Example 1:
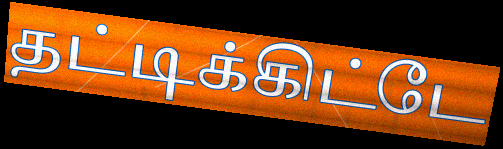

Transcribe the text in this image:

தட்டிக்கிட்டே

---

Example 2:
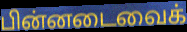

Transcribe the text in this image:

பின்னடைவைக்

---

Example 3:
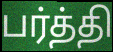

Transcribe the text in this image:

பர்த்தி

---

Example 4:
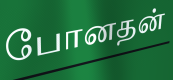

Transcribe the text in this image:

போனதன்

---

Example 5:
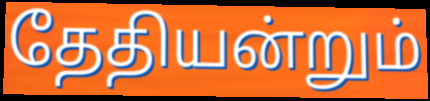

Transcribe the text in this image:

தேதியன்றும்